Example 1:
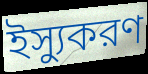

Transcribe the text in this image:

ইস্যুকরণ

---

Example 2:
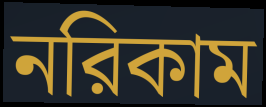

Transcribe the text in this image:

নরিকাম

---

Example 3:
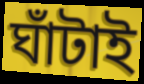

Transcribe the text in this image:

ঘাঁটাই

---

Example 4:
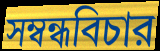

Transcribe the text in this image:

সম্বন্ধবিচার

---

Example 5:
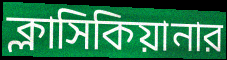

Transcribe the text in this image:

ক্লাসিকিয়ানার